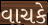
વાચકે